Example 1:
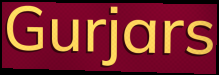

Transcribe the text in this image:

Gurjars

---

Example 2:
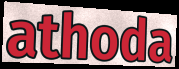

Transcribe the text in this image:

athoda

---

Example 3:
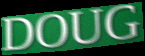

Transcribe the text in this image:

DOUG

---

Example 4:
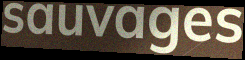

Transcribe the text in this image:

sauvages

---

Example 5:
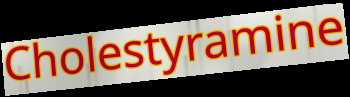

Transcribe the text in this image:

Cholestyramine